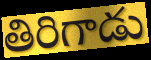
తిరిగాడు